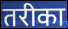
तरीका